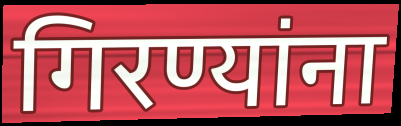
गिरण्यांना